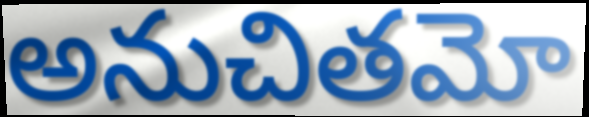
అనుచితమో